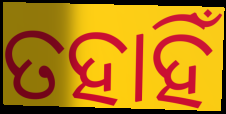
ତହାହିଁ